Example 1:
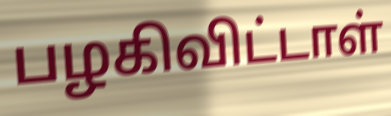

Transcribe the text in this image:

பழகிவிட்டாள்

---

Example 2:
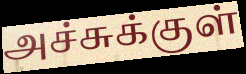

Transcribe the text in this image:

அச்சுக்குள்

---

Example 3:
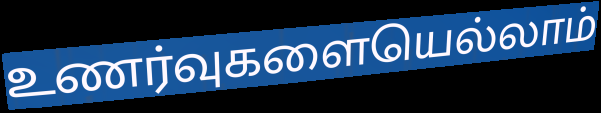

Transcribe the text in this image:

உணர்வுகளையெல்லாம்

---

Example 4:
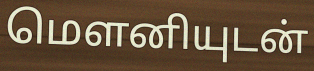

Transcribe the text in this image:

மௌனியுடன்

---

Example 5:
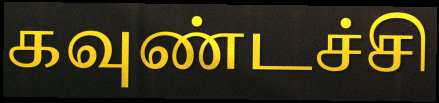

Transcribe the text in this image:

கவுண்டச்சி